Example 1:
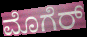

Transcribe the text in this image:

ಮೊಗೆರ್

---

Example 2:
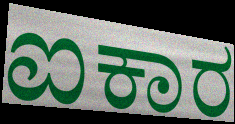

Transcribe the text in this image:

ಐಕಾರ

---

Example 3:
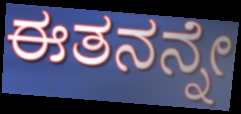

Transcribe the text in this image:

ಈತನನ್ನೇ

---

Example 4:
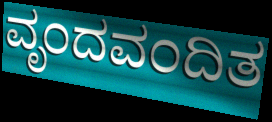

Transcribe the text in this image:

ವೃಂದವಂದಿತ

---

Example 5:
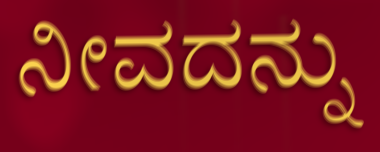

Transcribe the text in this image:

ನೀವದನ್ನು